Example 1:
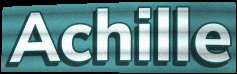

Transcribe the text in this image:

Achille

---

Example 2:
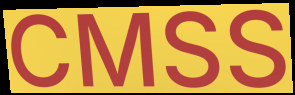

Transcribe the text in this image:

CMSS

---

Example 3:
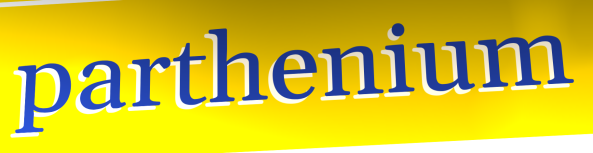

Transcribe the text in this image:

parthenium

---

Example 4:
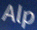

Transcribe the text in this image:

Alp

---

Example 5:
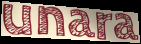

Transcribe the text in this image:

unara